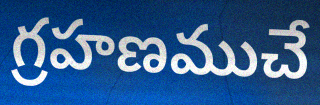
గ్రహణముచే